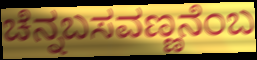
ಚೆನ್ನಬಸವಣ್ಣನೆಂಬ